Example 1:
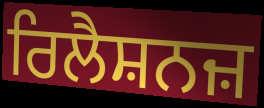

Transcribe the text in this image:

ਰਿਲੈਸ਼ਨਜ਼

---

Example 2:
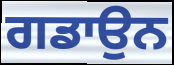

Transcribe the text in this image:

ਗਡਾਉਨ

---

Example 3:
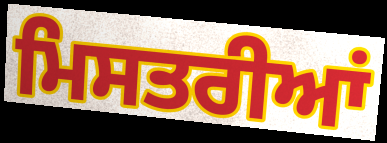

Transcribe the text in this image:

ਮਿਸਤਰੀਆਂ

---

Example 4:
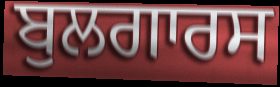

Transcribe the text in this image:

ਬੁਲਗਾਰਸ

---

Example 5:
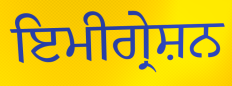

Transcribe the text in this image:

ਇਮੀਗ੍ਰੇਸ਼ਨ